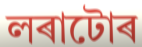
লৰাটোৰ